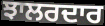
ਝਾਲਰਦਾਰ